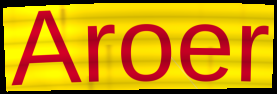
Aroer